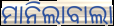
ମାନିଲାବାଲା